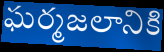
ఘర్మజలానికి